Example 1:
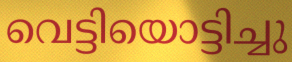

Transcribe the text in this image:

വെട്ടിയൊട്ടിച്ചു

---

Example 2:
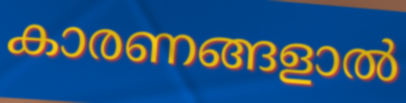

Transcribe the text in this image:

കാരണങ്ങളാൽ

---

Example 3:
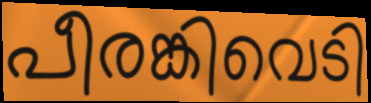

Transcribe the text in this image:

പീരങ്കിവെടി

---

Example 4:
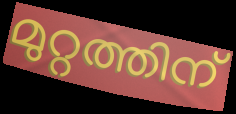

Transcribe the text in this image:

മുറ്റത്തിന്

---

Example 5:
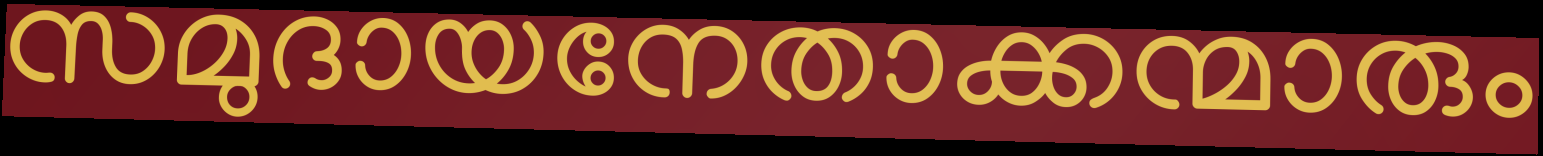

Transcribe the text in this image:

സമുദായനേതാക്കന്മാരും